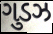
ગુડઝ